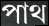
পাথ